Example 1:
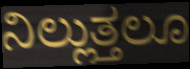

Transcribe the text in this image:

ನಿಲ್ಲುತ್ತಲೂ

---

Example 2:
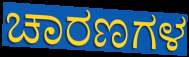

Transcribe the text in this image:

ಚಾರಣಗಳ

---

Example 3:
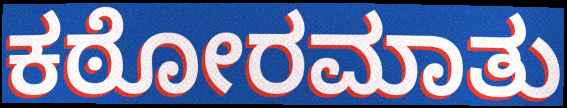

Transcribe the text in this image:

ಕಠೋರಮಾತು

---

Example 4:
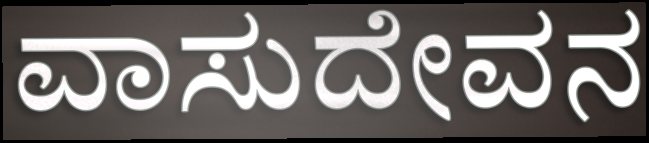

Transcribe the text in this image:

ವಾಸುದೇವನ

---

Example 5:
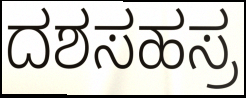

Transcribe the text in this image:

ದಶಸಹಸ್ರ